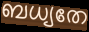
ബധ്യതേ